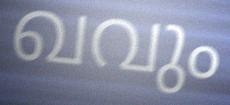
ഖവും